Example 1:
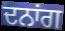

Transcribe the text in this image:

ਦਨਾਂਗ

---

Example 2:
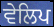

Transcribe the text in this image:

ਵੇਲਿਪ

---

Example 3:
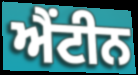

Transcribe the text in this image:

ਐਂਟੀਨ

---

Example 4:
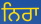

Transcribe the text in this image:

ਨਿਰਾ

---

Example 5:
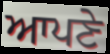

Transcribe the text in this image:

ਆਪਣੇ